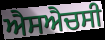
ਐਸਐਚਸੀ